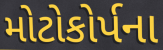
મોટોકોર્પના